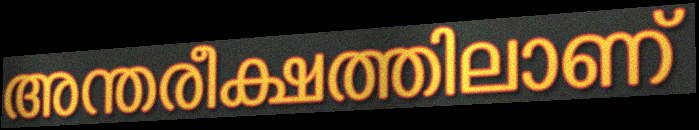
അന്തരീക്ഷത്തിലാണ്